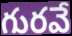
గురవే